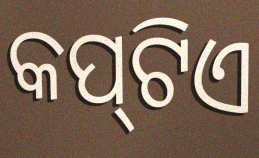
କପ୍‌ଟିଏ